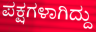
ಪಕ್ಷಗಳಾಗಿದ್ದು